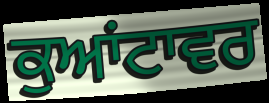
ਕੁਆਂਟਾਵਰ